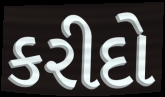
કરીદો